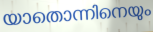
യാതൊന്നിനെയും